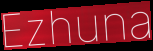
Ezhuna